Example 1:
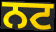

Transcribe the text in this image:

ਨਟ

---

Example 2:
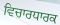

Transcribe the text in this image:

ਵਿਚਾਰਧਾਰਕ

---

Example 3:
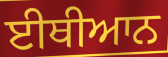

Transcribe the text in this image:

ਈਥੀਆਨ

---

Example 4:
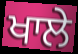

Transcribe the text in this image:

ਖਾਲੇ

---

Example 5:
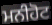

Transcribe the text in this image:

ਮਨੀਹੋਟ